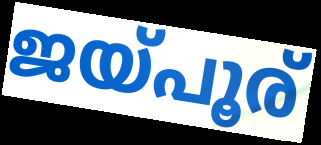
ജയ്പൂര്